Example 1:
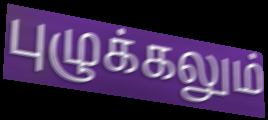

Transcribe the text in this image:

புழுக்கலும்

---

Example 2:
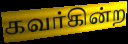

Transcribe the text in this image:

கவர்கின்ற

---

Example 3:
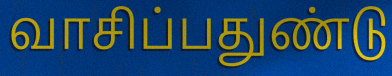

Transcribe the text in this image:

வாசிப்பதுண்டு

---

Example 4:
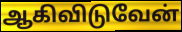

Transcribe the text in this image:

ஆகிவிடுவேன்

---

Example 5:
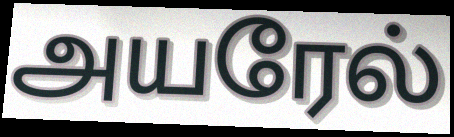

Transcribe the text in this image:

அயரேல்